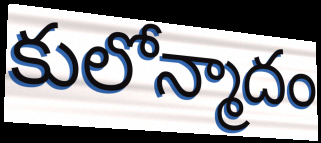
కులోన్మాదం